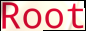
Root